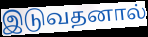
இடுவதனால்